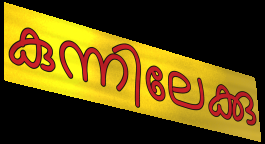
കുന്നിലേക്കു